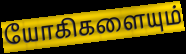
யோகிகளையும்